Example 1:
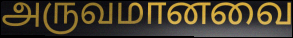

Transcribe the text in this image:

அருவமானவை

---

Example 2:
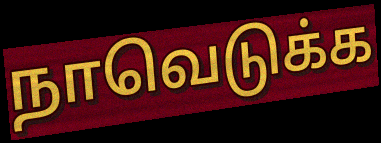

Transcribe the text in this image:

நாவெடுக்க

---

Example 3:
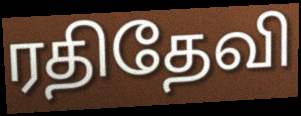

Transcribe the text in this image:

ரதிதேவி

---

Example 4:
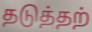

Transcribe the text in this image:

தடுத்தற்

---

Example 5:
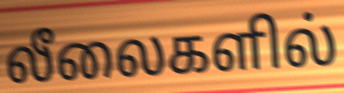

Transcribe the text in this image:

லீலைகளில்